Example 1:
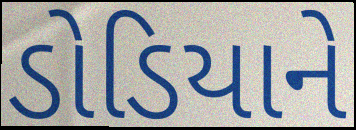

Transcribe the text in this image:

ડોડિયાને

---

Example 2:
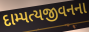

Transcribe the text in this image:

દામ્પત્યજીવનના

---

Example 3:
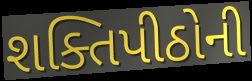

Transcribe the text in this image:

શક્તિપીઠોની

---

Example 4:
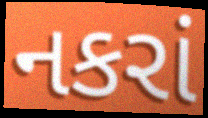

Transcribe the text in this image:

નકરાં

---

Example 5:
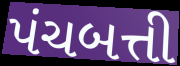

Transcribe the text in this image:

પંચબત્તી